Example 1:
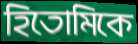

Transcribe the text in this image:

হিতোমিকে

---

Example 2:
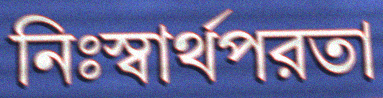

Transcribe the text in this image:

নিঃস্বার্থপরতা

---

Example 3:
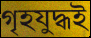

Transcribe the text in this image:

গৃহযুদ্ধই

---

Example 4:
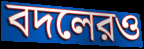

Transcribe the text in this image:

বদলেরও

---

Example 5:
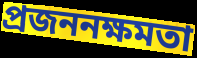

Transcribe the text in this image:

প্রজননক্ষমতা